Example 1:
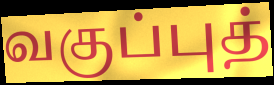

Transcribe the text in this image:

வகுப்புத்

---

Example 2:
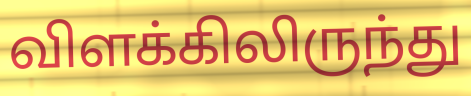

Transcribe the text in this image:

விளக்கிலிருந்து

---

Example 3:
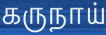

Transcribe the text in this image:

கருநாய்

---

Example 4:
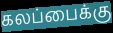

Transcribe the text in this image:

கலப்பைக்கு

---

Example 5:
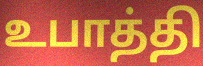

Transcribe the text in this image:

உபாத்தி